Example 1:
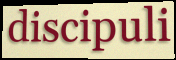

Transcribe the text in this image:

discipuli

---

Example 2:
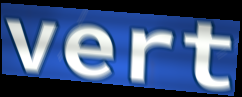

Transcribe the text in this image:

vert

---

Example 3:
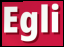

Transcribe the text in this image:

Egli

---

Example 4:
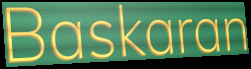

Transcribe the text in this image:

Baskaran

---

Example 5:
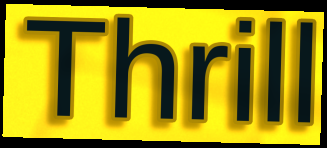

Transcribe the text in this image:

Thrill